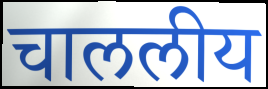
चाललीय